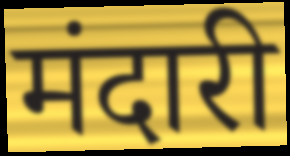
मंदारी